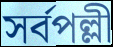
সৰ্বপল্লী